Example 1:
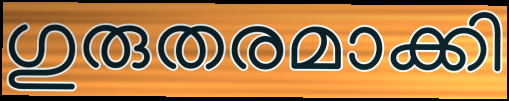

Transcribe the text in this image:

ഗുരുതരമാക്കി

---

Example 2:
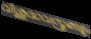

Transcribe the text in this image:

വിശുദ്ധവസ്ത്രങ്ങളും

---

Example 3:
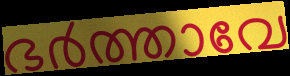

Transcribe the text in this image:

ഭർത്താവേ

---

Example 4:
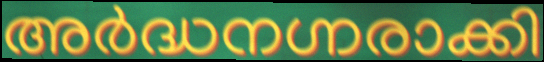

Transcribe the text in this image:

അർദ്ധനഗ്നരാക്കി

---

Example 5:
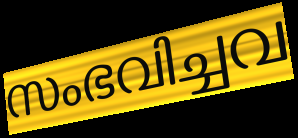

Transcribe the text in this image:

സംഭവിച്ചവ